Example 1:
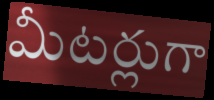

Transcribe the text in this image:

మీటర్లుగా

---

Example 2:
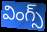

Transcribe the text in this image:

వింగ్స్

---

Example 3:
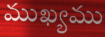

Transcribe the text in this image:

ముఖ్యము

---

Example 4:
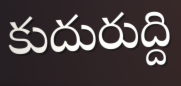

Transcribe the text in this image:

కుదురుద్ది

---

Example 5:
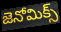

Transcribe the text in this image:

జెనోమిక్స్